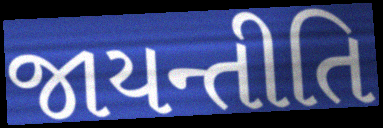
જાયન્તીતિ